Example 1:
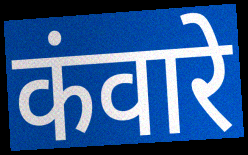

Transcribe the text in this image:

कंवारे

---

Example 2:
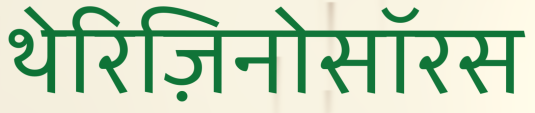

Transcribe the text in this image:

थेरिज़िनोसॉरस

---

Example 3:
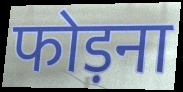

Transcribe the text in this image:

फोड़ना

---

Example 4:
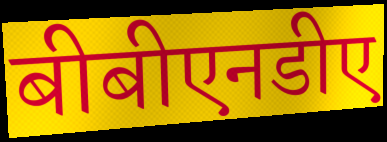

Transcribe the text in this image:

बीबीएनडीए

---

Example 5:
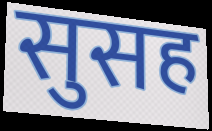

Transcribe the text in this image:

सुसह